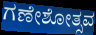
ಗಣೇಶೋತ್ಸವ